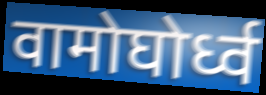
वामोघोर्ध्व